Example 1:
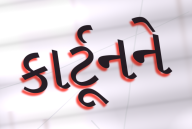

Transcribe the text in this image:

કાર્ટૂનને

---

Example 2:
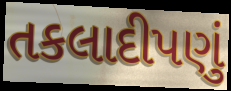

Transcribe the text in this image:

તકલાદીપણું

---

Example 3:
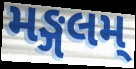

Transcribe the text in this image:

મઙ્ગલમ્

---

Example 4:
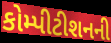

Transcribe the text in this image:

કોમ્પીટીશનની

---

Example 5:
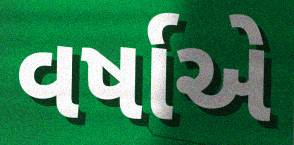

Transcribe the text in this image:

વર્ષાએ